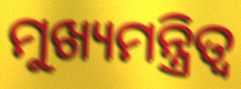
ମୁଖ୍ୟମନ୍ତ୍ରିତ୍ୱ